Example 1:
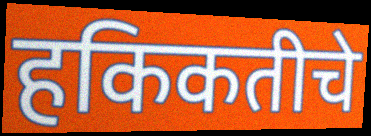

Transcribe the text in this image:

हकिकतीचे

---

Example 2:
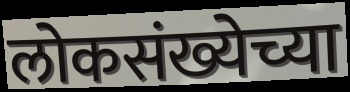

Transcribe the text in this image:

लोकसंख्‍येच्‍या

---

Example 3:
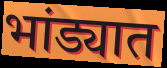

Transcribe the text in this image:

भांड्यात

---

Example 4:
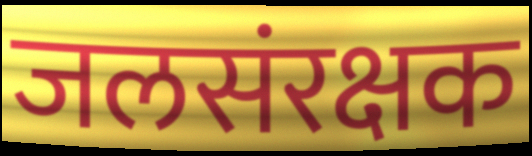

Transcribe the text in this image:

जलसंरक्षक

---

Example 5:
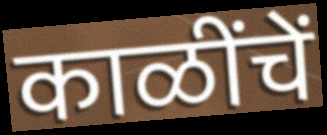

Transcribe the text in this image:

काळींचें